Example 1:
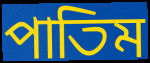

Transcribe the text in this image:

পাতিম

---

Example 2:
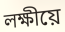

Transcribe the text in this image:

লক্ষীয়ে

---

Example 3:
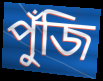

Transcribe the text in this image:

পুঁজি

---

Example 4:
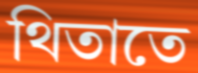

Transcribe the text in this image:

থিতাতে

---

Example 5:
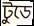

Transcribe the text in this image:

টুডে